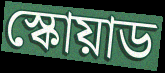
স্কোয়াড